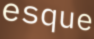
esque